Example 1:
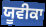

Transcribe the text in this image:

ਯੂਵੀਕਾ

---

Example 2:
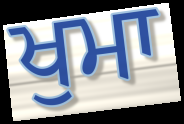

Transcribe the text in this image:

ਖੁਮਾ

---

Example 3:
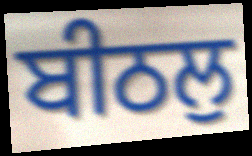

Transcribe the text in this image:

ਬੀਠਲੁ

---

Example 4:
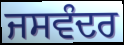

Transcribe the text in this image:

ਜਸਵੰਦਰ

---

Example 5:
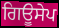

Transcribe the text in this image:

ਗਿਊਸੇਪ